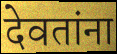
देवतांना